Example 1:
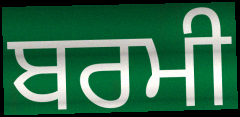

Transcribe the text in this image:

ਬਰਮੀ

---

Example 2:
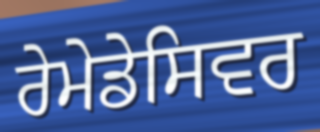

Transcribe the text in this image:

ਰੇਮੇਡੇਸਿਵਰ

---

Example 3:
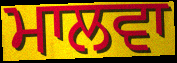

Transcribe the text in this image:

ਮਾਲਵਾ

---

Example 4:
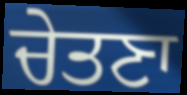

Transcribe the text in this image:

ਚੇਤਣਾ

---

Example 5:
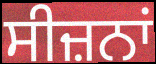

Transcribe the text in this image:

ਸੀਜ਼ਨਾਂ